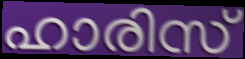
ഹാരിസ്